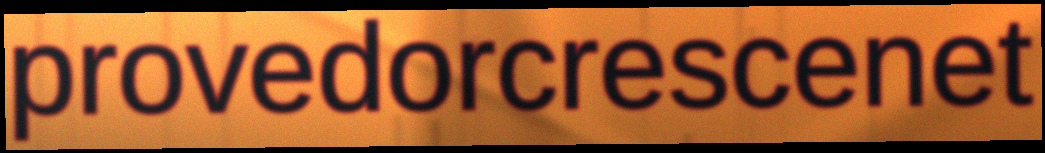
provedorcrescenet